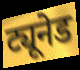
ट्यूनेड